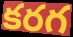
కరగ